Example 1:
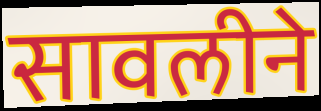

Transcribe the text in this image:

सावलीने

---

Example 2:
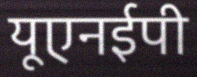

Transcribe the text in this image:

यूएनईपी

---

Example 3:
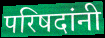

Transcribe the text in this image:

परिषदांनी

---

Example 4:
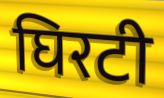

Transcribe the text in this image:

घिरटी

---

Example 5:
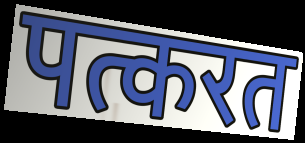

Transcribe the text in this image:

पत्करत